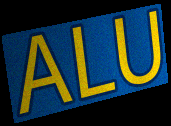
ALU